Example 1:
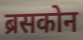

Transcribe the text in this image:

ब्रसकोन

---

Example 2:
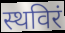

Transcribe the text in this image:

स्थविरं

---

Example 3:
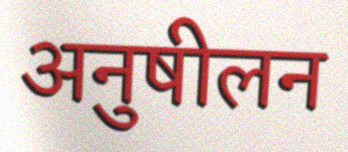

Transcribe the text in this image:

अनुषीलन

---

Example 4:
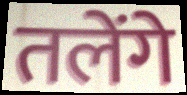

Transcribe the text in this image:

तलेंगे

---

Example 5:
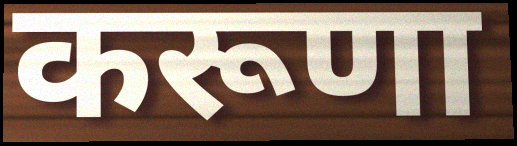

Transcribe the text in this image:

करूणा